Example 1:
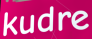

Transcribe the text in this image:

kudre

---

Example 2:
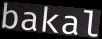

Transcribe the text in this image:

bakal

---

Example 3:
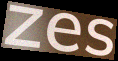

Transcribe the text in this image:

zes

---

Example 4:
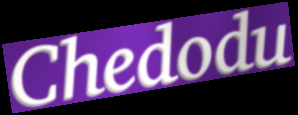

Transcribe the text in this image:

Chedodu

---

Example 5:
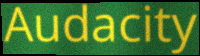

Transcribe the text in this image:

Audacity